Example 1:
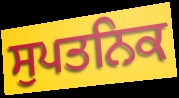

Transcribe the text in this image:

ਸੁਪਤਨਿਕ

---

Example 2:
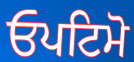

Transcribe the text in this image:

ਓਪਟਿਮੋ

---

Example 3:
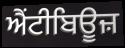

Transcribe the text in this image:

ਐਂਟੀਬਿਊਜ਼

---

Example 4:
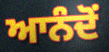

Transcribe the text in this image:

ਆਨੰਦੋਂ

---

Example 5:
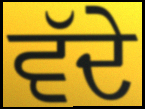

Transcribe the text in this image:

ਵੱਦੇ